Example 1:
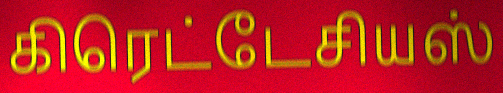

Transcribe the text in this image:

கிரெட்டேசியஸ்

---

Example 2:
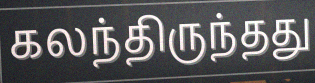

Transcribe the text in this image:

கலந்திருந்தது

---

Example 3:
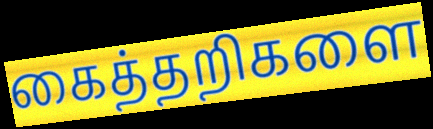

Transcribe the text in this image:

கைத்தறிகளை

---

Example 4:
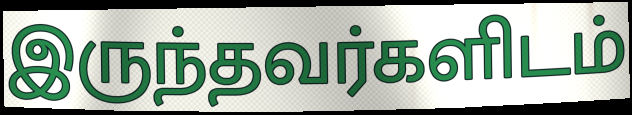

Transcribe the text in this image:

இருந்தவர்களிடம்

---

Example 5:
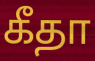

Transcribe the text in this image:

கீதா